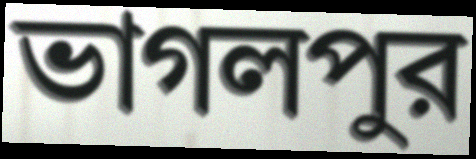
ভাগলপুর